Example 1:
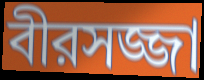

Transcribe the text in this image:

বীরসজ্জা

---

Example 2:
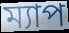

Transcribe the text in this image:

ম্যাপ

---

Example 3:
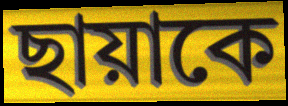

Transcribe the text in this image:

ছায়াকে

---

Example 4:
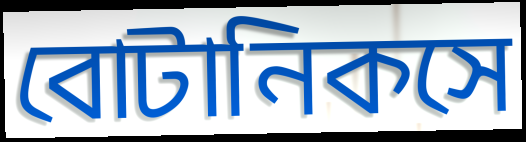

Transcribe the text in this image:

বোটানিকসে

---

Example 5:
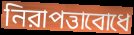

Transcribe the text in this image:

নিরাপত্তাবোধে